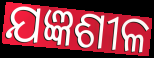
ଯଜ୍ଞଶୀଳ